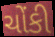
ચોંકી